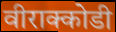
वीराक्कोडी